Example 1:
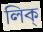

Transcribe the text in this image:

লিক্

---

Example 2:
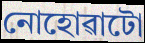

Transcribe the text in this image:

নোহোৱাটো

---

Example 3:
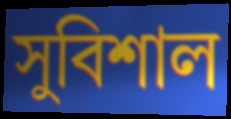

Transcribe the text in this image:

সুবিশাল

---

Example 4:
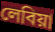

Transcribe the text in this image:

লেবিয়া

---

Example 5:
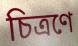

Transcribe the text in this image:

চিত্ৰণে